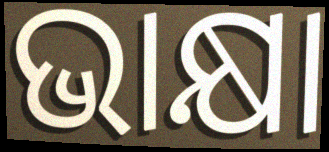
ଭାକ୍ଷା